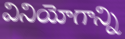
వినియోగాన్ని